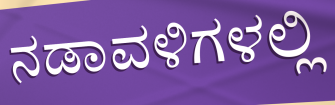
ನಡಾವಳಿಗಳಲ್ಲಿ